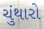
ચુંથારો